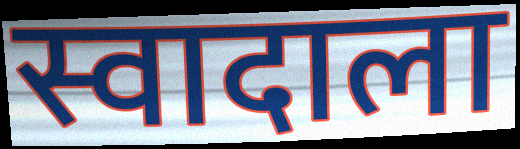
स्वादाला